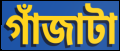
গাঁজাটা